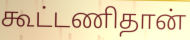
கூட்டணிதான்